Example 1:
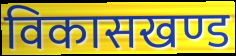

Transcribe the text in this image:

विकासखण्ड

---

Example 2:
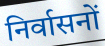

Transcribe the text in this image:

निर्वासनों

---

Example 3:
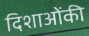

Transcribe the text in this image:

दिशाओंकी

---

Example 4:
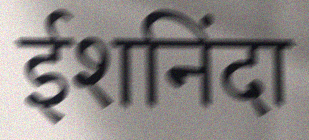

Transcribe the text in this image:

ईशनिंदा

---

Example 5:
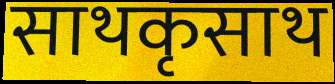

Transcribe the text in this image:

साथकृसाथ